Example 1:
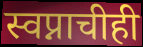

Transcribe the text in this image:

स्वप्नाचीही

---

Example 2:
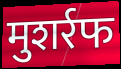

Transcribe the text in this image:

मुशर्रफ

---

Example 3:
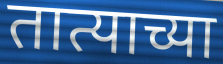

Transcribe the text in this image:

तात्याच्या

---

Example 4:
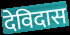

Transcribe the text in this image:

देविदास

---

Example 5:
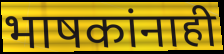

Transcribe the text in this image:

भाषकांनाही